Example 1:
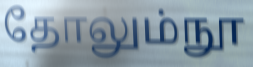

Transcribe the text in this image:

தோலும்நூ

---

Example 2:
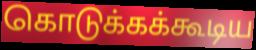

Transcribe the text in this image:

கொடுக்கக்கூடிய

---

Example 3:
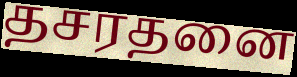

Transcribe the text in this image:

தசரதனை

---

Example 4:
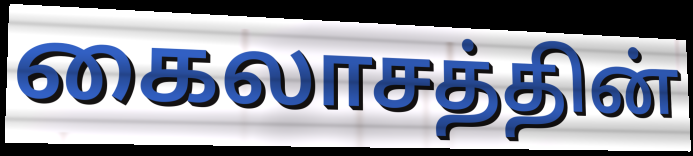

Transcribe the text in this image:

கைலாசத்தின்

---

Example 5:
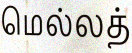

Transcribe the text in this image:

மெல்லத்